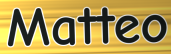
Matteo